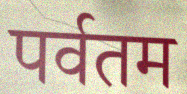
पर्वतम